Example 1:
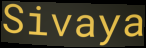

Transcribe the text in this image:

Sivaya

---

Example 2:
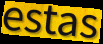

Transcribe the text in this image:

estas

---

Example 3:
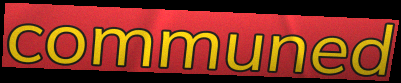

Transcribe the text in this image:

communed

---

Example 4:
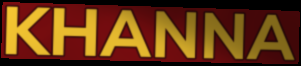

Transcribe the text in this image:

KHANNA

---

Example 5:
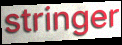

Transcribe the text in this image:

stringer